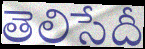
తెలిసేదీ